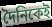
দৈনিকেই